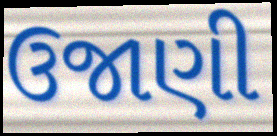
ઉજાણી